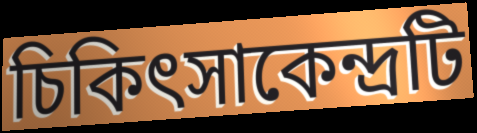
চিকিৎসাকেন্দ্রটি